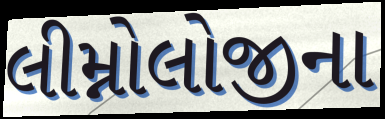
લીમ્નોલોજીના